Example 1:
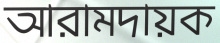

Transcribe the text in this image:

আরামদায়ক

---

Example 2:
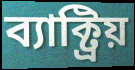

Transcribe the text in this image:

ব্যাক্ট্রিয়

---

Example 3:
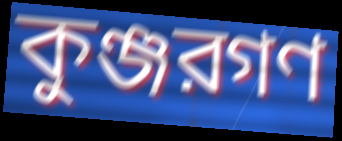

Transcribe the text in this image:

কুঞ্জরগণ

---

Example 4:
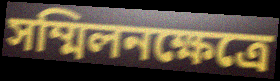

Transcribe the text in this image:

সম্মিলনক্ষেত্রে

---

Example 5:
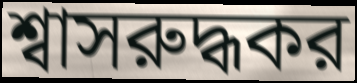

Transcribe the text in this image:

শ্বাসরুদ্ধকর